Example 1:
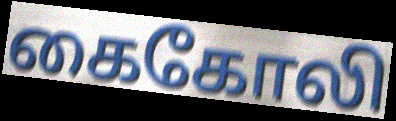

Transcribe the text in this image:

கைகோலி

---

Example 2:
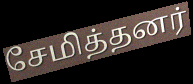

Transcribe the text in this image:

சேமித்தனர்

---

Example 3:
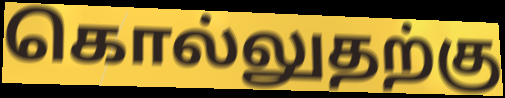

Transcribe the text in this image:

கொல்லுதற்கு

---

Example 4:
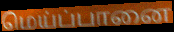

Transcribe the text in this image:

மெய்ப்பானை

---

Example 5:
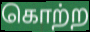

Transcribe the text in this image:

கொற்ற